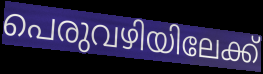
പെരുവഴിയിലേക്ക്